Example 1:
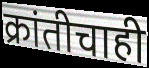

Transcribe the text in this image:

क्रांतीचाही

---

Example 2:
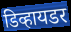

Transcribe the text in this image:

डिव्हायडर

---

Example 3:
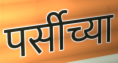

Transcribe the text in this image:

पर्सीच्या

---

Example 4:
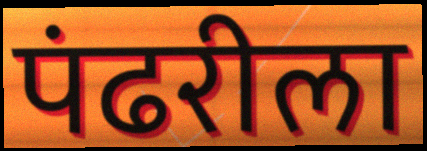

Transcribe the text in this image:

पंढरीला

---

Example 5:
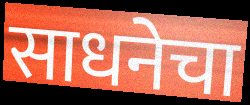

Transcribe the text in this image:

साधनेचा